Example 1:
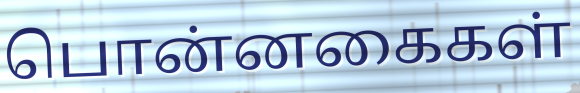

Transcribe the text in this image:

பொன்னகைகள்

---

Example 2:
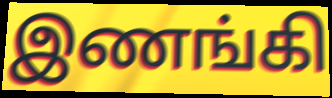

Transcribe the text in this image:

இணங்கி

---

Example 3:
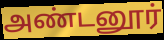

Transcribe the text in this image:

அண்டனூர்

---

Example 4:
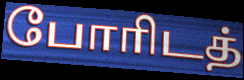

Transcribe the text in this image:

போரிடத்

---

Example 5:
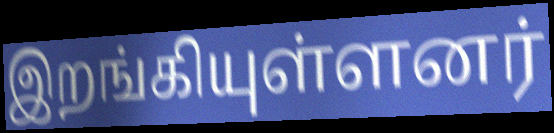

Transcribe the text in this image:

இறங்கியுள்ளனர்